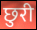
छुरी